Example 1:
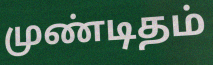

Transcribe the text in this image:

முண்டிதம்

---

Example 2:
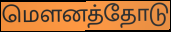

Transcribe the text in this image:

மௌனத்தோடு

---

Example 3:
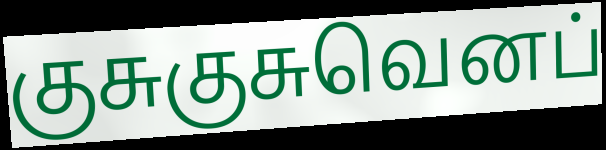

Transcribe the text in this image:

குசுகுசுவெனப்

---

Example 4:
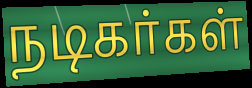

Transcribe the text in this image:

நடிகர்கள்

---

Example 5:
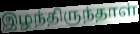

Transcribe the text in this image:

இழந்திருந்தாள்